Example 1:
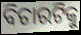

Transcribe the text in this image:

ବିଚାରଟିକୁ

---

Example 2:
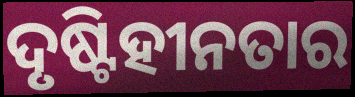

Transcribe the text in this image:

ଦୃଷ୍ଟିହୀନତାର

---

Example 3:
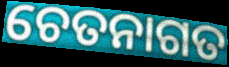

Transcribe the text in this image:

ଚେତନାଗତ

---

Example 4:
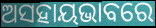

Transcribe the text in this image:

ଅସହାୟଭାବରେ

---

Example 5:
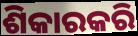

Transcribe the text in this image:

ଶିକାରକରି